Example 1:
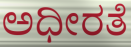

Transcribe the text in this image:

ಅಧೀರತೆ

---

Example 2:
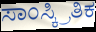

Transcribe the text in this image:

ಸಾಂಸ್ಕ್ರಿತಿಕ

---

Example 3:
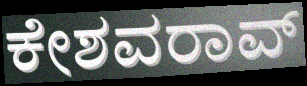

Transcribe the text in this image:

ಕೇಶವರಾವ್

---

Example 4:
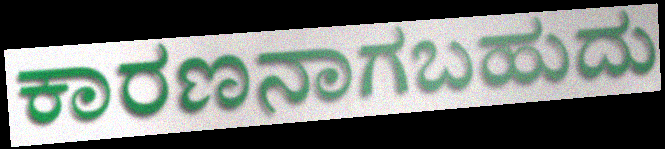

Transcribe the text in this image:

ಕಾರಣನಾಗಬಹುದು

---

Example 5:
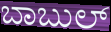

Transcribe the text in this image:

ಬಾಬುಲ್